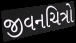
જીવનચિત્રો